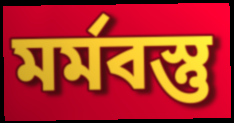
মৰ্মবস্তু